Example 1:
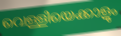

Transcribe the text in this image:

വെള്ളിയെക്കാളും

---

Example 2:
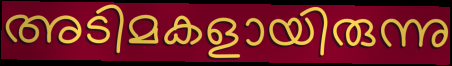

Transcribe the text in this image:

അടിമകളായിരുന്നു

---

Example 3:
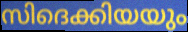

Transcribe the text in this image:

സിദെക്കിയയും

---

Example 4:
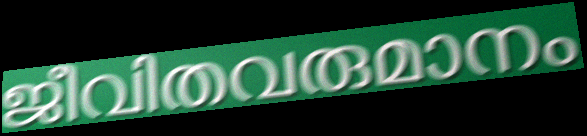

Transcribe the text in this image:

ജീവിതവരുമാനം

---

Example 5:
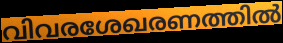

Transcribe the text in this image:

വിവരശേഖരണത്തിൽ